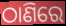
ଠାଣିରେ